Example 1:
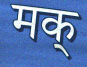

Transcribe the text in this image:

मक्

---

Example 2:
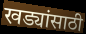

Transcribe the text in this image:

खड्यांसाठी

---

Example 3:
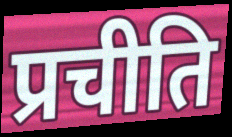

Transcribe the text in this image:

प्रचीति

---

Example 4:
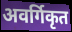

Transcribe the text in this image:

अवर्गिकृत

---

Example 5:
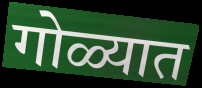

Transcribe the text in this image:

गोळ्यात